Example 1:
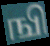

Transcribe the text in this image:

ஙி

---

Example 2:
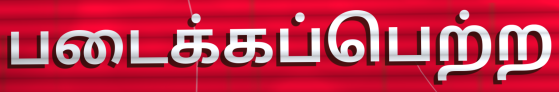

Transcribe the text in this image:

படைக்கப்பெற்ற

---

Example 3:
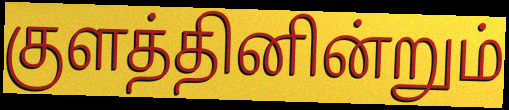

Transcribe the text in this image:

குளத்தினின்றும்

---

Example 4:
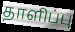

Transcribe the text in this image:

தாளிப்பு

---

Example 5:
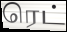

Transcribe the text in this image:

ரெட்